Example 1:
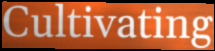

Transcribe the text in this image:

Cultivating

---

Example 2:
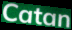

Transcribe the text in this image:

Catan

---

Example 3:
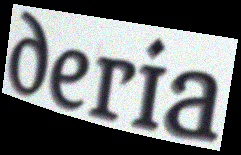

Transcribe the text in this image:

deria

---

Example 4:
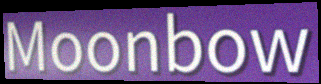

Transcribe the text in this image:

Moonbow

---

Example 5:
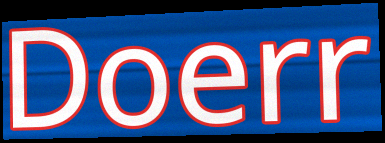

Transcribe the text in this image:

Doerr